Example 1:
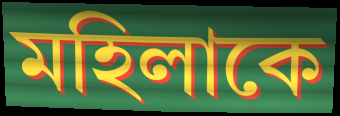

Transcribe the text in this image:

মহিলাকে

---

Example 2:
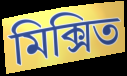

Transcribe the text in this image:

মিক্সিত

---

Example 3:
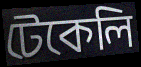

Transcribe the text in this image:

টেকেলি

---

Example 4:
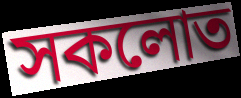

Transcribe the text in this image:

সকলোত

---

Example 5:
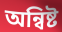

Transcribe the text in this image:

অন্বিষ্ট